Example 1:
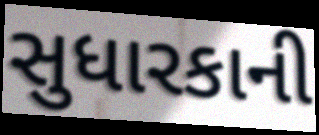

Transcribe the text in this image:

સુધારકાની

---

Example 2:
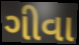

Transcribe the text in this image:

ગીવા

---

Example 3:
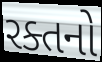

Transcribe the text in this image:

રક્તનો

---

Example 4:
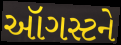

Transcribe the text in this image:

ઑગસ્ટને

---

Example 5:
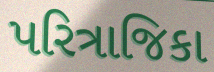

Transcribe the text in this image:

પરિત્રાજિકા